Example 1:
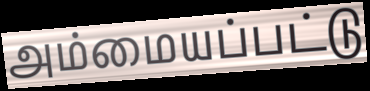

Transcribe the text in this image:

அம்மையப்பட்டு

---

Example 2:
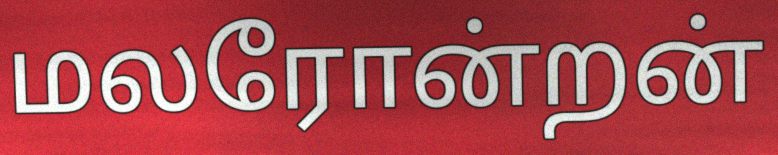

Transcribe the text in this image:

மலரோன்றன்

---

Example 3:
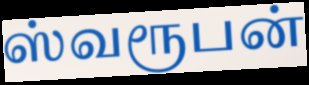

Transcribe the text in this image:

ஸ்வரூபன்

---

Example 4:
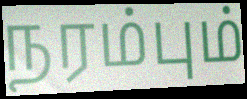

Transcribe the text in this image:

நரம்பும்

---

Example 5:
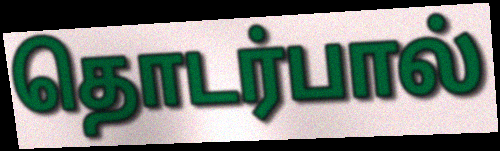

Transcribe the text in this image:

தொடர்பால்